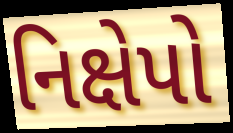
નિક્ષેપો